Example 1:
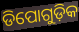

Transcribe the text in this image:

ଡିପୋଗୁଡ଼ିକ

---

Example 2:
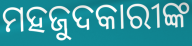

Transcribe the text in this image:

ମହଜୁଦକାରୀଙ୍କ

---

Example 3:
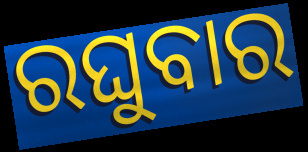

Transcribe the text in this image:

ରଘୁବାର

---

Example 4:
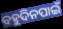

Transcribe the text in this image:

ବହୁଦିନପାଇଁ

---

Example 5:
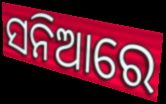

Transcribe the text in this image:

ସନିଆରେ